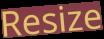
Resize